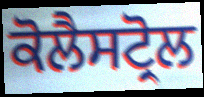
ਕੋਲੈਸਟ੍ਰੋਲ